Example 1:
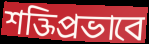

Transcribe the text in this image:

শক্তিপ্রভাবে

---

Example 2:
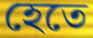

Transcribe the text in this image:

হেতে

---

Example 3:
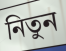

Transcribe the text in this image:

নিতুন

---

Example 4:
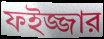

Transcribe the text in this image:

ফইজ্জার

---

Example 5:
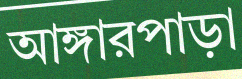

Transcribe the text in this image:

আঙ্গারপাড়া